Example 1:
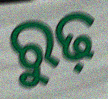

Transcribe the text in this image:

ରୁଢ଼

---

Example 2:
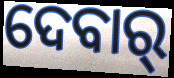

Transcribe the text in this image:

ଦେବାର୍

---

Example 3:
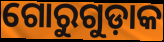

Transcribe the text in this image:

ଗୋରୁଗୁଡ଼ାକ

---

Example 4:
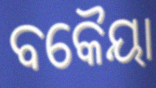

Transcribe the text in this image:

ବକୈୟା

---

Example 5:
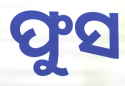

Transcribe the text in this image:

ଫୁସ